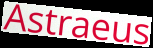
Astraeus